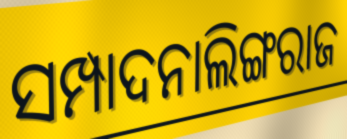
ସମ୍ପାଦନାଲିଙ୍ଗରାଜ